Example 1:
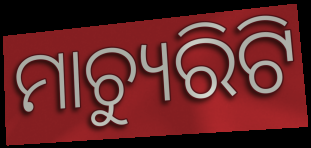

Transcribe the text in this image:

ମାଚ୍ୟୁରିଟି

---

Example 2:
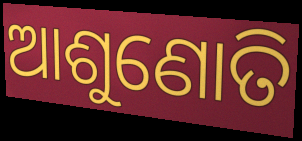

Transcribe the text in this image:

ଆଶୁଣୋତି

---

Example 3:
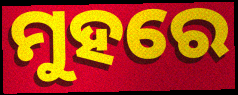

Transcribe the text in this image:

ମୁହରେ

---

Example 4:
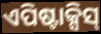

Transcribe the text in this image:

ଏପିଷ୍ଟାକ୍ସିସ୍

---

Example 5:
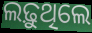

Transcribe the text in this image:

ଲଢ଼ୁଥିଲେ